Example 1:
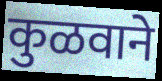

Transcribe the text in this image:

कुळवाने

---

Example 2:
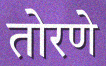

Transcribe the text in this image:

तोरणे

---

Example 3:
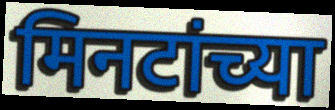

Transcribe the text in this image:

मिनटांच्या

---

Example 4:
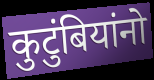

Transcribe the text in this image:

कुटुंबियांनो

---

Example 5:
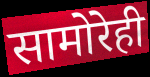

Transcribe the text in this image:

सामोरेही